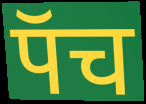
पॅच